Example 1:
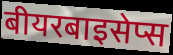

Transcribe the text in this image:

बीयरबाइसेप्स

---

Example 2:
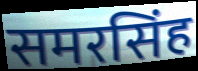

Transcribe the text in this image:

समरसिंह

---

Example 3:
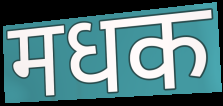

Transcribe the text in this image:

मधक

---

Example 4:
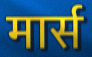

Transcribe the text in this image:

मार्स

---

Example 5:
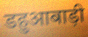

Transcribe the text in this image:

डहुआबाड़ी